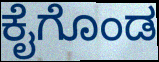
ಕೈಗೊಂಡ